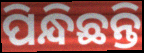
ପିନ୍ଧିଛନ୍ତି